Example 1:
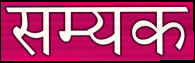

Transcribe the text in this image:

सम्यक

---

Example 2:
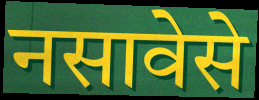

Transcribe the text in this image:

नसावेसे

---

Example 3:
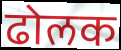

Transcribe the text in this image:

ढोलक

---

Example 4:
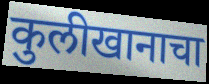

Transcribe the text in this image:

कुलीखानाचा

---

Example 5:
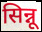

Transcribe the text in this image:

सिन्नू